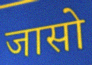
जासो